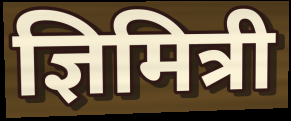
ज्ञिमित्री